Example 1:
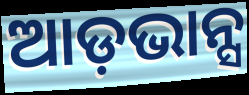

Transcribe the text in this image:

ଆଡ଼ଭାନ୍ସ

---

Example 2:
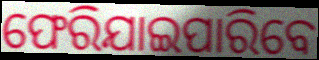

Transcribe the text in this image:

ଫେରିଯାଇପାରିବେ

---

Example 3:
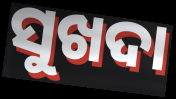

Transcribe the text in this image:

ସୁଖଦା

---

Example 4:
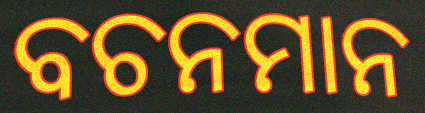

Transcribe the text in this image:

ବଚନମାନ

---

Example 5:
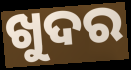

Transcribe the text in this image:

ଖୁଦର